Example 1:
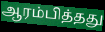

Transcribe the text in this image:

ஆரம்பித்தது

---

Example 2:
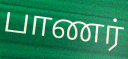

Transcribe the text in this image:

பாணர்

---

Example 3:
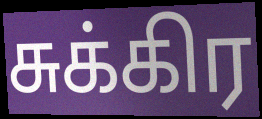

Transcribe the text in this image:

சுக்கிர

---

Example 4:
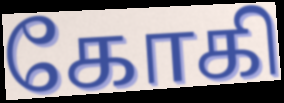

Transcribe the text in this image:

கோகி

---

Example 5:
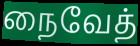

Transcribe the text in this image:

நைவேத்